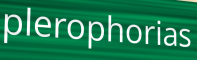
plerophorias